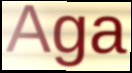
Aga